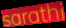
sarathi